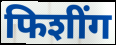
फिशींग